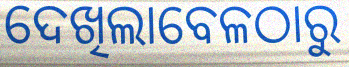
ଦେଖିଲାବେଳଠାରୁ